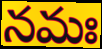
నమః